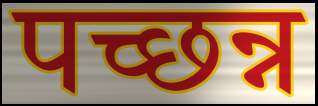
पच्छन्न